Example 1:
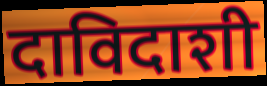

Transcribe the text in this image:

दाविदाशी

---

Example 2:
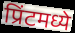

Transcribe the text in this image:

प्रिंटमध्ये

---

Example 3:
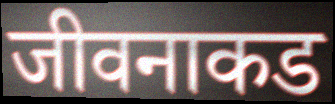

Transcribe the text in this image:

जीवनाकड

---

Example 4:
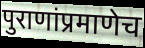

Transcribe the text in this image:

पुराणांप्रमाणेच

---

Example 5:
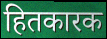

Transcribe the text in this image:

हितकारक